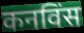
कनविंस